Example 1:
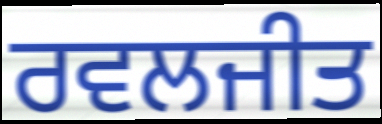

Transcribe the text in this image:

ਰਵਲਜੀਤ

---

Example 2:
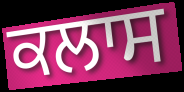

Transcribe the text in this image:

ਕਲਾਸ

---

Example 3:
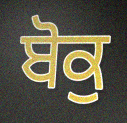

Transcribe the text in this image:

ਬੋਕੁ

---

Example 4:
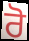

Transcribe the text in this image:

ਰੋ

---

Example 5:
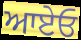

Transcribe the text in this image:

ਆਏਓ